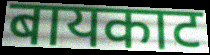
बायकाट